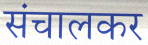
संचालकर